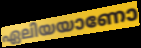
ഏലിയയാണോ